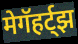
मेगॅहर्ट्झ